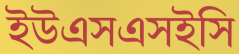
ইউএসএসইসি